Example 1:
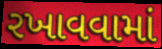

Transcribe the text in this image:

રખાવવામાં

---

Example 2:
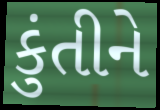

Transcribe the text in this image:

કુંતીને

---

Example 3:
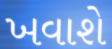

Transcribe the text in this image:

ખવાશે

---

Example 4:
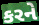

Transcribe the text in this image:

કરને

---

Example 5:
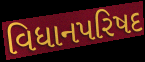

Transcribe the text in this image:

વિધાનપરિષદ